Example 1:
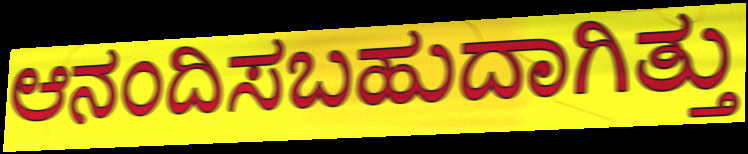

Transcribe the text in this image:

ಆನಂದಿಸಬಹುದಾಗಿತ್ತು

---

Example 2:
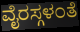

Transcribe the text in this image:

ವೈರಸ್ಗಳಂತೆ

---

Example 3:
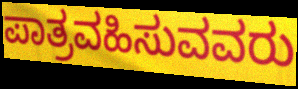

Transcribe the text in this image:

ಪಾತ್ರವಹಿಸುವವರು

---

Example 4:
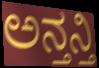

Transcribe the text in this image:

ಅನ್ತನ್ತಿ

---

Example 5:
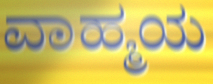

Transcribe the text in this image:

ವಾಹ್ಮಯ